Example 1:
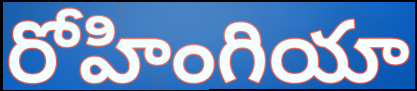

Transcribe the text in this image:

రోహింగియా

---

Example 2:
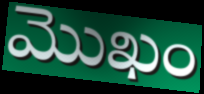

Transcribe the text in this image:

మొఖం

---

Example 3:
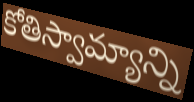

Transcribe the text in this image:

కోతిస్వామ్యాన్ని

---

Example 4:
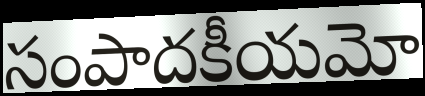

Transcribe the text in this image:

సంపాదకీయమో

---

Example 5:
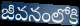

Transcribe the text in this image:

జీవనంలోకి